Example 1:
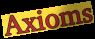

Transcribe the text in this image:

Axioms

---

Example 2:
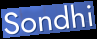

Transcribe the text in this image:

Sondhi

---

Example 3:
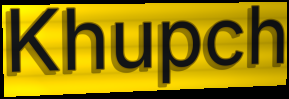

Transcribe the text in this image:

Khupch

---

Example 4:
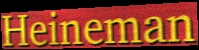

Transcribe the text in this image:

Heineman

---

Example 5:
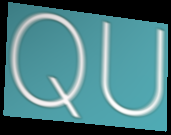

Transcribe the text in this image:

QU